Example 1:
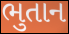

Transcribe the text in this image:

ભુતાન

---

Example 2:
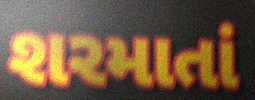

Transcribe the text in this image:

શરમાતાં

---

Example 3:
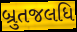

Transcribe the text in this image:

બ્રુતજલધિ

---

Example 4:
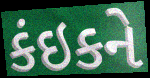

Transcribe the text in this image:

કંઇકને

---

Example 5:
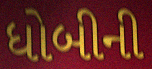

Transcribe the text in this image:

ધોબીની